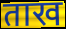
ताख